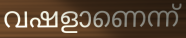
വഷളാണെന്ന്